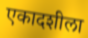
एकादशीला